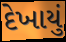
દેખાયું